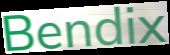
Bendix